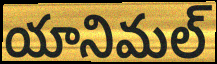
యానిమల్